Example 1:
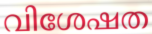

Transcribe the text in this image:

വിശേഷത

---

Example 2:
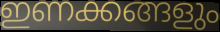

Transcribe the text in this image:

ഇണക്കങ്ങളും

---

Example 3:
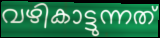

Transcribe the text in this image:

വഴികാട്ടുന്നത്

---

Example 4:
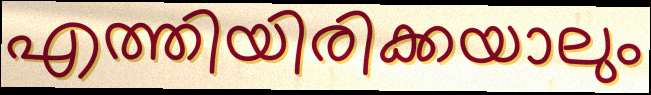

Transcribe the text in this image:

എത്തിയിരിക്കയാലും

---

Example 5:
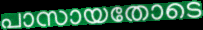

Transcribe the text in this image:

പാസായതോടെ